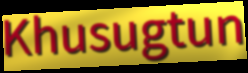
Khusugtun